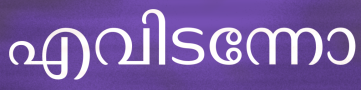
എവിടന്നോ